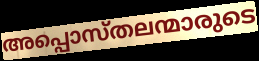
അപ്പൊസ്തലന്മാരുടെ